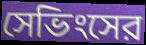
সেভিংসের